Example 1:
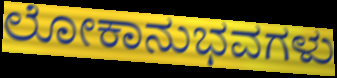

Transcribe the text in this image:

ಲೋಕಾನುಭವಗಳು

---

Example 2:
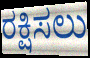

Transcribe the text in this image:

ರಕ್ಷಿಸಲು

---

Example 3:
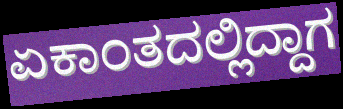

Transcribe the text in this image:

ಏಕಾಂತದಲ್ಲಿದ್ದಾಗ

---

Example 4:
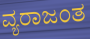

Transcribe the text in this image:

ವ್ಯರಾಜಂತ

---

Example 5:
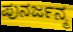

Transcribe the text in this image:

ಪುನರ್ಜನ್ಮ